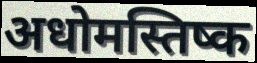
अधोमस्तिष्क